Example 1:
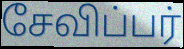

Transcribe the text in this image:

சேவிப்பர்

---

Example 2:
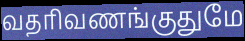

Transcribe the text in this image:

வதரிவணங்குதுமே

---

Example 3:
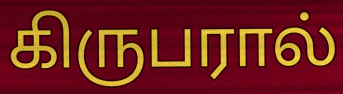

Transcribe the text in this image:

கிருபரால்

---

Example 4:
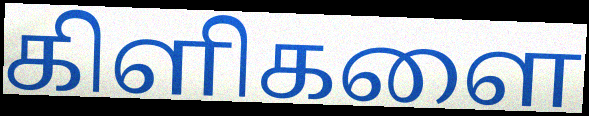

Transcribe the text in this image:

கிளிகளை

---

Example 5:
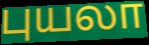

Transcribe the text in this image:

புயலா